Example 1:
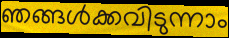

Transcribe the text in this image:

ഞങ്ങൾക്കവിടുന്നാം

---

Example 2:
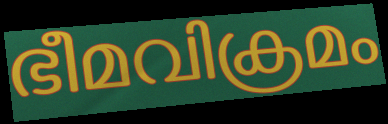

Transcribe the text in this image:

ഭീമവിക്രമം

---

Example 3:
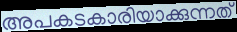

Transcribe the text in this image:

അപകടകാരിയാക്കുന്നത്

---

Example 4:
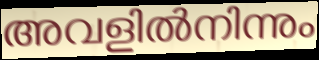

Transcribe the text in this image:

അവളിൽനിന്നും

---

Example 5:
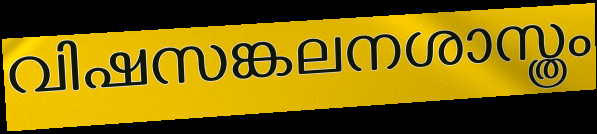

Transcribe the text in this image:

വിഷസങ്കലനശാസ്ത്രം